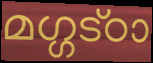
മഗ്ഗട്ഠാ